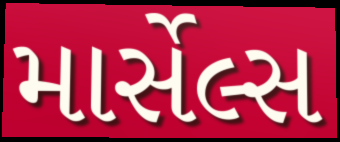
માર્સેલ્સ